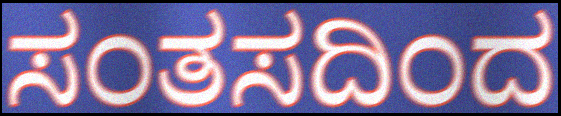
ಸಂತಸದಿಂದ